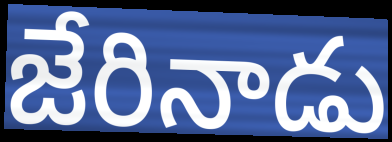
జేరినాడు